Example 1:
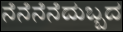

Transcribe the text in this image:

ನೆನೆನೆನೆದುಬ್ಬದ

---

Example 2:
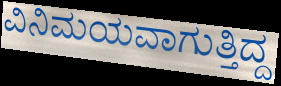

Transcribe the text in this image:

ವಿನಿಮಯವಾಗುತ್ತಿದ್ದ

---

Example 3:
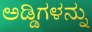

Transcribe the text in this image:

ಅಡ್ಡಿಗಳನ್ನು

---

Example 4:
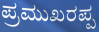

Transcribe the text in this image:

ಪ್ರಮುಖರಪ್ಪ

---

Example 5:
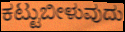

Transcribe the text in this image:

ಕಟ್ಟುಬೀಳುವುದು